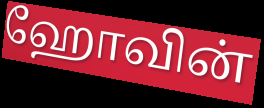
ஹோவின்